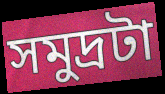
সমুদ্রটা